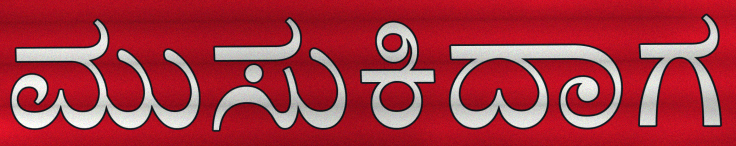
ಮುಸುಕಿದಾಗ